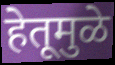
हेतूमुळे